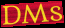
DMs